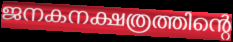
ജനകനക്ഷത്രത്തിന്റെ